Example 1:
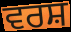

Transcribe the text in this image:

ਵਰਸ਼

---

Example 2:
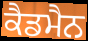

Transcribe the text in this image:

ਕੈਡਮੈਨ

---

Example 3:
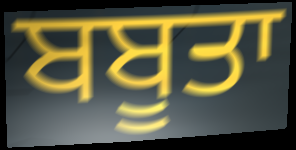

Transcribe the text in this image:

ਬਬੂਤਾ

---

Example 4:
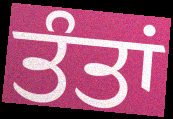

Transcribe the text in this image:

ਤੰਤਾਂ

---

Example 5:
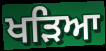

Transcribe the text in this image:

ਖੜਿਆ